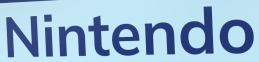
Nintendo